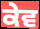
ਕੇਵ